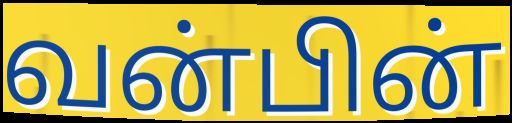
வன்பின்